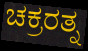
ಚಕ್ರರತ್ನ